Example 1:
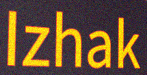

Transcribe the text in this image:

Izhak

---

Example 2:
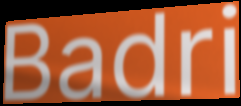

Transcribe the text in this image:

Badri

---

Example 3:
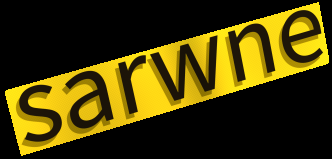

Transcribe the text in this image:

sarwne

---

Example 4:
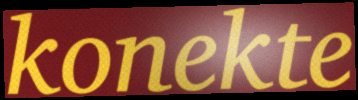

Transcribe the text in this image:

konekte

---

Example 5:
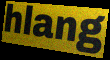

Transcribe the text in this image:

hlang